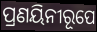
ପ୍ରଣୟିନୀରୂପେ